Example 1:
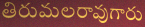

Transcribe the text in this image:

తిరుమలరావుగారు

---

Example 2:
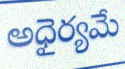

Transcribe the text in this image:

అధైర్యమే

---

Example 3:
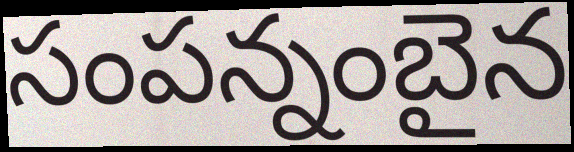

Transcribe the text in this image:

సంపన్నంబైన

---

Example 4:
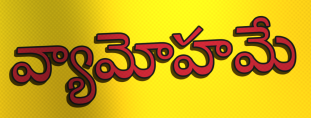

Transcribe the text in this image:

వ్యామోహమే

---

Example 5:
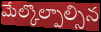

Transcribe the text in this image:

మేల్కొల్పాల్సిన